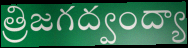
త్రిజగద్వంద్యా